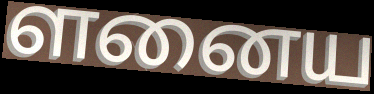
ளனைய